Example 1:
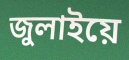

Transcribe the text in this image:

জুলাইয়ে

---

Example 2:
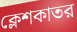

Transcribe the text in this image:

ক্লেশকাতর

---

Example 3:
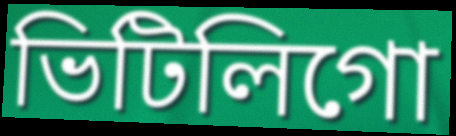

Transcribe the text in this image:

ভিটিলিগো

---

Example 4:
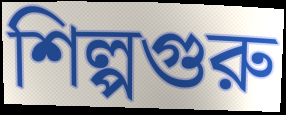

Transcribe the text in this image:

শিল্পগুরু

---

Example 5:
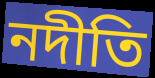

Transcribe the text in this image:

নদীতি